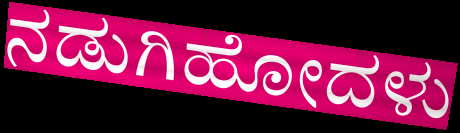
ನಡುಗಿಹೋದಳು